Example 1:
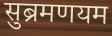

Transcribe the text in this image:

सुब्रमणयम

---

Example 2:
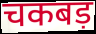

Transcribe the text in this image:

चकबड़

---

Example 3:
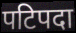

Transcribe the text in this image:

पटिपदा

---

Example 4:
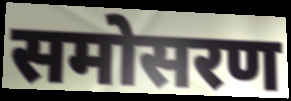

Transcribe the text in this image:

समोसरण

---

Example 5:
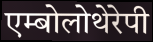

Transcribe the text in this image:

एम्बोलोथेरेपी